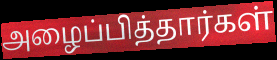
அழைப்பித்தார்கள்